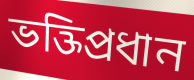
ভক্তিপ্রধান